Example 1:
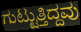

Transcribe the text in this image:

ಗುಟ್ಟುತ್ತಿದ್ದವು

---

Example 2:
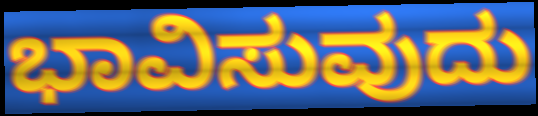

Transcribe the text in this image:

ಭಾವಿಸುವುದು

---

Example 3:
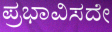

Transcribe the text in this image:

ಪ್ರಭಾವಿಸದೇ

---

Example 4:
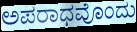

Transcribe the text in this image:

ಅಪರಾಧವೊಂದು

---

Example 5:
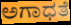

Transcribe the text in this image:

ಅಗಾಧತೆ